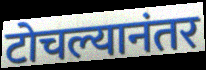
टोचल्यानंतर